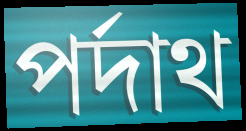
পর্দাথ